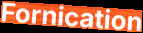
Fornication